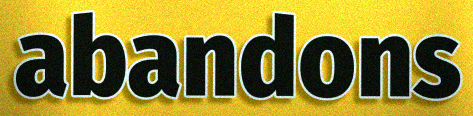
abandons